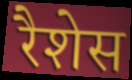
रैशेस